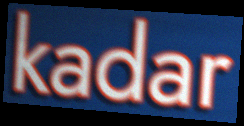
kadar